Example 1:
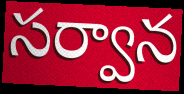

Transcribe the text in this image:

సర్వాన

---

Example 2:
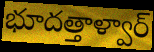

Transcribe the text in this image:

భూదత్తాళ్వార్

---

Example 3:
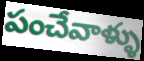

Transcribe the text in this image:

పంచేవాళ్ళు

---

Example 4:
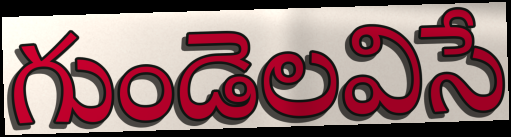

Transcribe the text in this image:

గుండెలవిసే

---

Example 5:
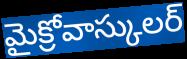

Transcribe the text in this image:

మైక్రోవాస్కులర్